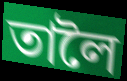
তালৈ